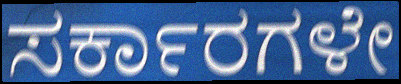
ಸರ್ಕಾರಗಳೇ